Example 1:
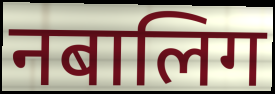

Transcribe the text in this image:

नबालिग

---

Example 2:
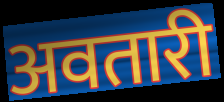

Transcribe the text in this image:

अवतारी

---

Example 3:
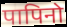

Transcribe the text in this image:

पापिनो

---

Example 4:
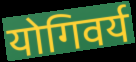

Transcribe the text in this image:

योगिवर्य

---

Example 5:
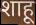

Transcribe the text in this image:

शाहू